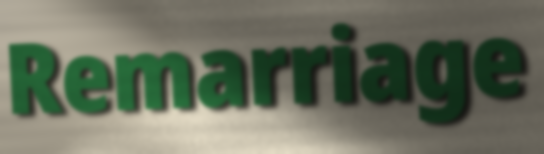
Remarriage